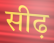
सीढ़